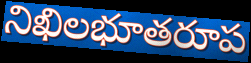
నిఖిలభూతరూప